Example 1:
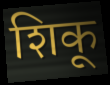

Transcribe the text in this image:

शिकू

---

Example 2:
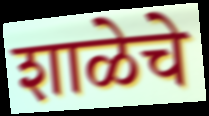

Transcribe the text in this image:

शाळेचे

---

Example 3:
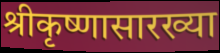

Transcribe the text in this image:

श्रीकृष्णासारख्या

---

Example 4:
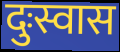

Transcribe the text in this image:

दुःस्वास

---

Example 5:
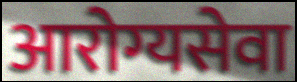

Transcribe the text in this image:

आरोग्यसेवा